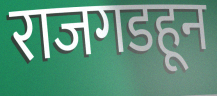
राजगडहून